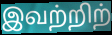
இவற்றிற்